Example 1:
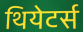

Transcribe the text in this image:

थियेटर्स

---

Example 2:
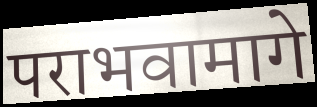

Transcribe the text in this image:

पराभवामागे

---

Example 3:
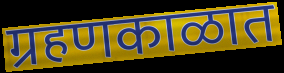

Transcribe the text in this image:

ग्रहणकाळात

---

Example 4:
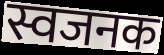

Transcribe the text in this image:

स्वजनक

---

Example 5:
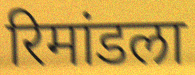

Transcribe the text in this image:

रिमांडला